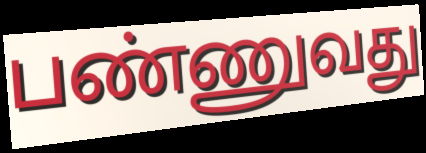
பண்ணுவது